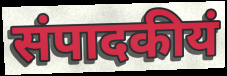
संपादकीयं